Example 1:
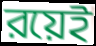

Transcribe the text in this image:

রয়েই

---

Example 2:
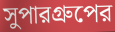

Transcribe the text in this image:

সুপারগ্রুপের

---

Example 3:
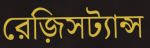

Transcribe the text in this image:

রেজ়িসট্যান্স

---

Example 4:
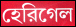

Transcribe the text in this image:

হেরিগেল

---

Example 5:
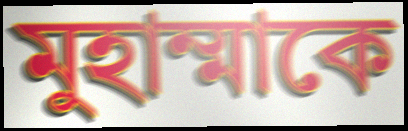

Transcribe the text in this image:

মুহাম্মাকে